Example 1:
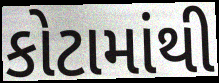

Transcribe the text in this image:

કોટામાંથી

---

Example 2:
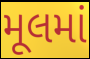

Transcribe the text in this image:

મૂલમાં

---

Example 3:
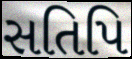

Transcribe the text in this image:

સતિપિ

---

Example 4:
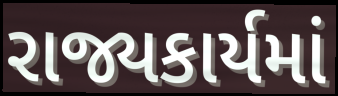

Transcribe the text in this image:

રાજ્યકાર્યમાં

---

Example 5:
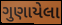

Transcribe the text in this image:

ગુણાયેલા